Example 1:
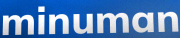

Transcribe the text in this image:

minuman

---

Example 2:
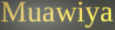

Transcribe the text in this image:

Muawiya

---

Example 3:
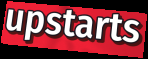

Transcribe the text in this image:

upstarts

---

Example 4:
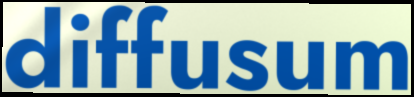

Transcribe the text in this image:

diffusum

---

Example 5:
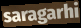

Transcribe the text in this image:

saragarhi